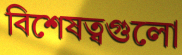
বিশেষত্বগুলো